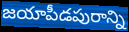
జయాపీడపురాన్ని